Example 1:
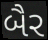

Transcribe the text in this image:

બૈર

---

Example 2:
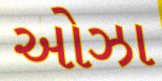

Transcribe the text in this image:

ઓઝા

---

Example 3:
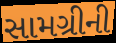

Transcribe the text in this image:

સામગ્રીની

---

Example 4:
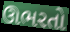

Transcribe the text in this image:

ઊભરતો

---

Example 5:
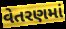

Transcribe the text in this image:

વેતરણમાં